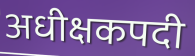
अधीक्षकपदी